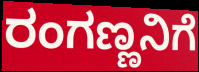
ರಂಗಣ್ಣನಿಗೆ